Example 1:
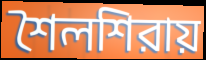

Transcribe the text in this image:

শৈলশিরায়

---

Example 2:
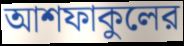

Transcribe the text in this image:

আশফাকুলের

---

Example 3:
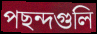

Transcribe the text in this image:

পছন্দগুলি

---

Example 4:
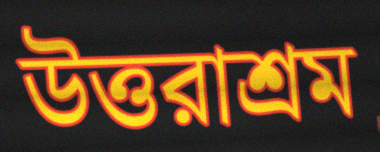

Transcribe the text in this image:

উত্তরাশ্রম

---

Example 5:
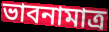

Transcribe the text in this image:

ভাবনামাত্র